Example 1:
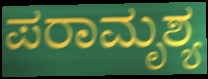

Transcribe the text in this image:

ಪರಾಮೃಶ್ಯ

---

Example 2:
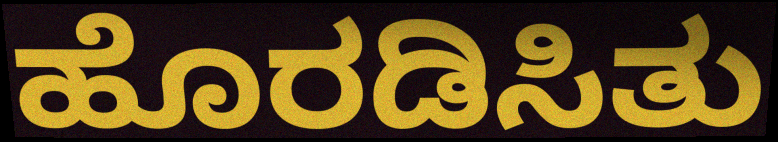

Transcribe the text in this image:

ಹೊರಡಿಸಿತು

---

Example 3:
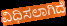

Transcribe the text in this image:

ವಿಧಿಸಲಾಗಿದೆ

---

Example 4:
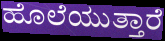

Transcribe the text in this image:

ಹೊಲೆಯುತ್ತಾರೆ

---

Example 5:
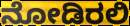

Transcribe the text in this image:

ನೋಡಿರಲಿ